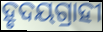
ହୃଦୟଗ୍ରାହୀ